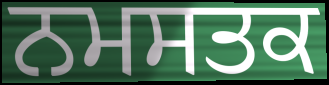
ਨਮਸਤਕ